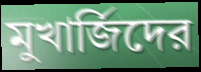
মুখার্জিদের